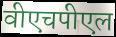
वीएचपीएल